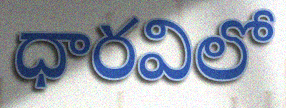
ధారవిలో